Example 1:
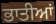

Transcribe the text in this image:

ਭਾਤੀਆਂ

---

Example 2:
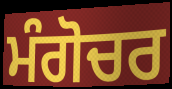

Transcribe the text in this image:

ਮੰਗੋਚਰ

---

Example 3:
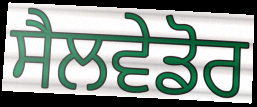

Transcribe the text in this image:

ਸੈਲਵੇਡੋਰ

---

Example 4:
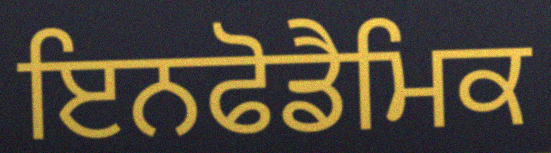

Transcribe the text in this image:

ਇਨਫੋਡੈਮਿਕ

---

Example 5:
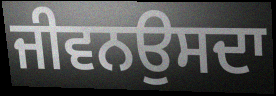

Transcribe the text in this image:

ਜੀਵਨਉਸਦਾ